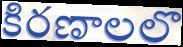
కిరణాలలొ